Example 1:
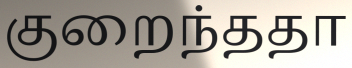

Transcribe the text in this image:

குறைந்ததா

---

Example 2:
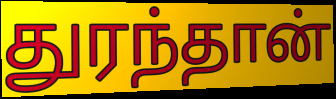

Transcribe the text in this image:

துரந்தான்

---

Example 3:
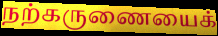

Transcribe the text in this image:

நற்கருணையைக்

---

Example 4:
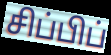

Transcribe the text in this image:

சிப்பிப்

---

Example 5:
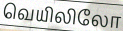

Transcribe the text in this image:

வெயிலிலோ